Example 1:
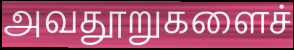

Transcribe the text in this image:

அவதூறுகளைச்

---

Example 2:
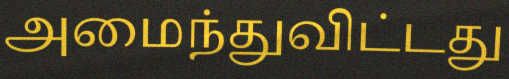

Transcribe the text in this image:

அமைந்துவிட்டது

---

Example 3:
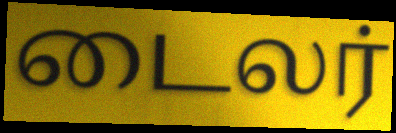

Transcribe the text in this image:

டைலர்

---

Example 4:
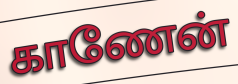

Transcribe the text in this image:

காணேன்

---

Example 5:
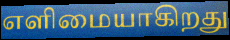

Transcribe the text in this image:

எளிமையாகிறது